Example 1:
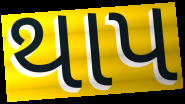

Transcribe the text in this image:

થાપ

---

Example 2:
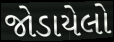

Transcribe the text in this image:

જોડાયેલો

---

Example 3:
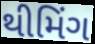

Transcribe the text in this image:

થીમિંગ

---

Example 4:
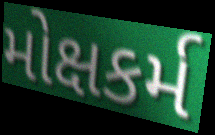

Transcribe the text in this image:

મોક્ષકર્મ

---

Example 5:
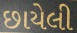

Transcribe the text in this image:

છાયેલી